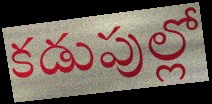
కడుపుల్లో